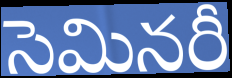
సెమినరీ